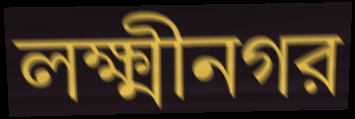
লক্ষ্মীনগর